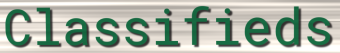
Classifieds